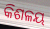
କିଶଳୟ